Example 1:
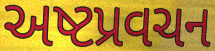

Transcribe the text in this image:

અષ્ટપ્રવચન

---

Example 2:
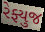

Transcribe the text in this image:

રેફ્યુજ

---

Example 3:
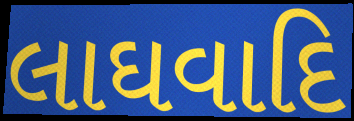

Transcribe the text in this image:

લાઘવાદિ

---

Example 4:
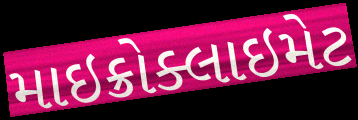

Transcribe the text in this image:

માઇક્રોક્લાઇમેટ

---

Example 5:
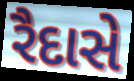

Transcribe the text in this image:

રૈદાસે